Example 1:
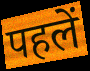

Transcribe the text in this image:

पहलें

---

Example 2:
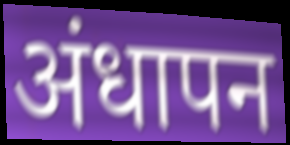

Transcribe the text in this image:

अंधापन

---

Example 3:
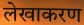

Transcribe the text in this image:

लेखाकरण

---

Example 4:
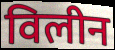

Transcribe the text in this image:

विलीन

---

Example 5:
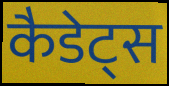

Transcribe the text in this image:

कैडेट्स